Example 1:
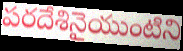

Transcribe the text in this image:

పరదేశినైయుంటిని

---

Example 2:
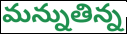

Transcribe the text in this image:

మన్నుతిన్న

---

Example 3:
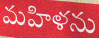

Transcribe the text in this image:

మహిళను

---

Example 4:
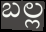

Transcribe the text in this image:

బల్ల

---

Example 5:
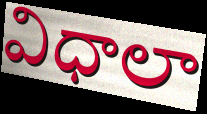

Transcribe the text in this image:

విధాలా